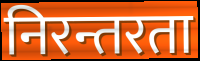
निरन्तरता